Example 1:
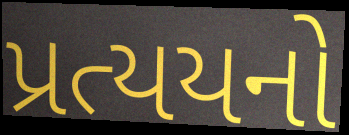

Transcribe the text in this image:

પ્રત્યયનો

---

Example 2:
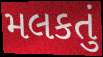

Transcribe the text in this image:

મલકતું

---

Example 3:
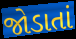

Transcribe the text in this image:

જોડાતાં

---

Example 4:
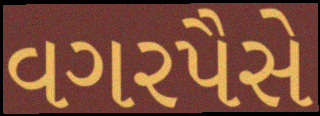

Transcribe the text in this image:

વગરપૈસે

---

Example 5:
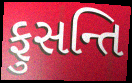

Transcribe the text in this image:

ફુસન્તિ